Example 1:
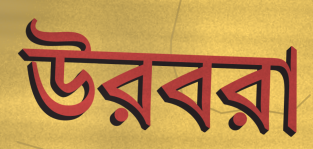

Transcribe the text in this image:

উরবরা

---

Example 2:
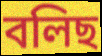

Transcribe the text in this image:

বলিছ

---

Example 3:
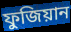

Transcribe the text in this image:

ফুজিয়ান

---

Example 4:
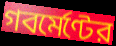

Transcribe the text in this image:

গবর্মেণ্টের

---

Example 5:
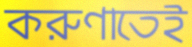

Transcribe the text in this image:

করুণাতেই